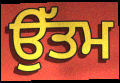
ਉੱਤਮ